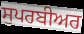
ਸੁਪਰਬੀਅਰ